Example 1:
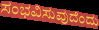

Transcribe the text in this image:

ಸಂಭವಿಸುವುದೆಂದು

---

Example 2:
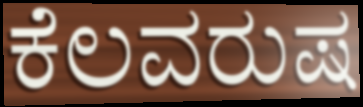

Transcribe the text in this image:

ಕೆಲವರುಷ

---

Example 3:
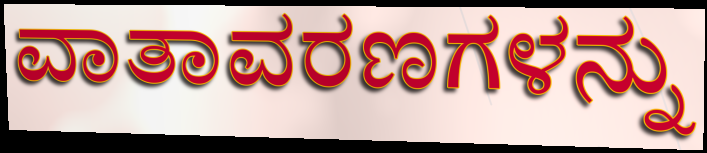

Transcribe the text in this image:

ವಾತಾವರಣಗಳನ್ನು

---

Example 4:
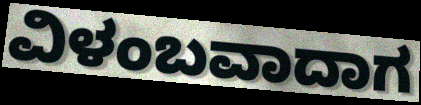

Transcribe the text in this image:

ವಿಳಂಬವಾದಾಗ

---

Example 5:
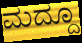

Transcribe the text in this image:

ಮದ್ದೂ